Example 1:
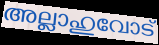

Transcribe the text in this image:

അല്ലാഹുവോട്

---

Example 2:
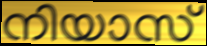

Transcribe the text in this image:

നിയാസ്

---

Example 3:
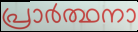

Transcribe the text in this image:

പ്രാർത്ഥനാ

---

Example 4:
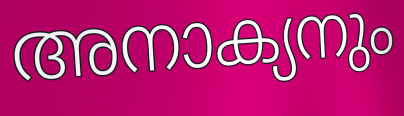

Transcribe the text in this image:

അനാക്യനും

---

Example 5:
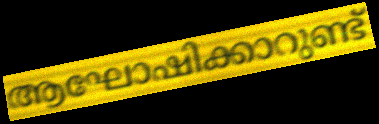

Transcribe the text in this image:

ആഘോഷിക്കാറുണ്ട്